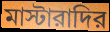
মাস্টারাদির